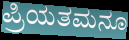
ಪ್ರಿಯತಮನೂ